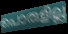
പൊരുളില്ല